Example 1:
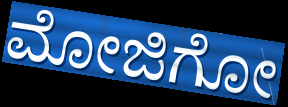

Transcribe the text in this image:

ಮೋಜಿಗೋ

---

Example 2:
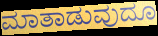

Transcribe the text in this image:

ಮಾತಾಡುವುದೂ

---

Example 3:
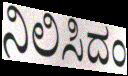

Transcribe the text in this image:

ನಿಲಿಸಿದಂ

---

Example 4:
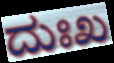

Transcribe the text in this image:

ದುಃಖ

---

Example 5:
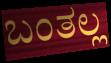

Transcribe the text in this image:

ಬಂತಲ್ಲ